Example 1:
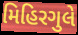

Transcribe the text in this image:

મિહિરગુલે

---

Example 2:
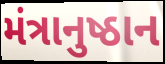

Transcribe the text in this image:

મંત્રાનુષ્ઠાન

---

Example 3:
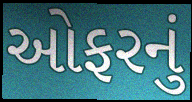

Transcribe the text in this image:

ઓફરનું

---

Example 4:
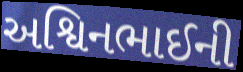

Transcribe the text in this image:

અશ્વિનભાઈની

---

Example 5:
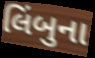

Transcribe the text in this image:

લિંબુના